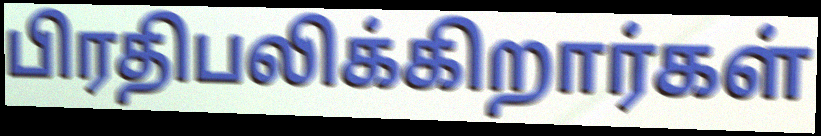
பிரதிபலிக்கிறார்கள்